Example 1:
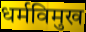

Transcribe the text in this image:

धर्मविमुख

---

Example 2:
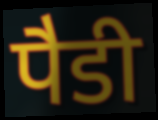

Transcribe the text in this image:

पैडी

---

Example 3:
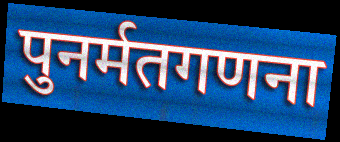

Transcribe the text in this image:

पुनर्मतगणना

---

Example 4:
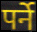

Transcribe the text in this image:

पर्ने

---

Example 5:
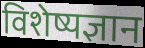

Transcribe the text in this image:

विशेष्यज्ञान